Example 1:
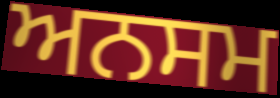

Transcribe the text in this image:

ਅਨਸਮ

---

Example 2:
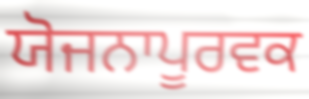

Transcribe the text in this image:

ਯੋਜਨਾਪੂਰਵਕ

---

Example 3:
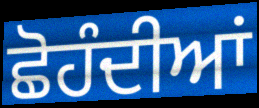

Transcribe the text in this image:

ਛੋਹੰਦੀਆਂ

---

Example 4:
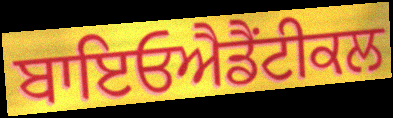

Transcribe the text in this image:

ਬਾਇਓਐਡੈਂਟੀਕਲ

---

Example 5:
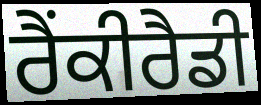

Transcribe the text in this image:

ਰੈਂਕੀਰੈਡੀ